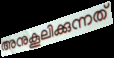
അനുകൂലിക്കുന്നത്